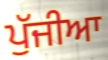
ਪੁੱਜੀਆ